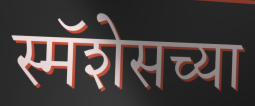
स्मॅशेसच्या